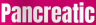
Pancreatic